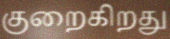
குறைகிறது